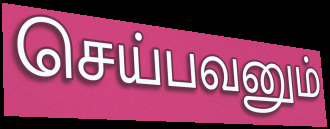
செய்பவனும்